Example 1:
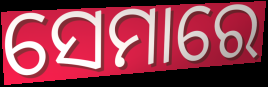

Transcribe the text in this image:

ସେମାରେ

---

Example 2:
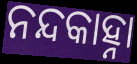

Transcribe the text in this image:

ନନ୍ଦକାହ୍ନା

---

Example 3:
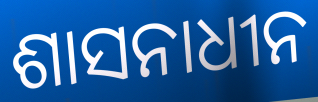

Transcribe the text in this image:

ଶାସନାଧୀନ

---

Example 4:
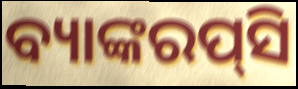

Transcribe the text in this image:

ବ୍ୟାଙ୍କରପ୍‌ସି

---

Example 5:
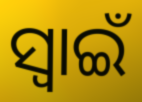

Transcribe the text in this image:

ସ୍ଵାଇଁ